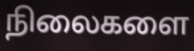
நிலைகளை